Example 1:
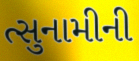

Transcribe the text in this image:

ત્સુનામીની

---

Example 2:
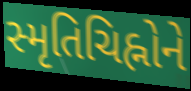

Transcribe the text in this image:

સ્મૃતિચિહ્નોને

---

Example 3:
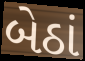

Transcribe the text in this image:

બેઠાં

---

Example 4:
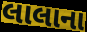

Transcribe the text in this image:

લાલાના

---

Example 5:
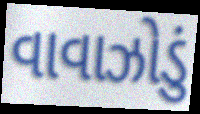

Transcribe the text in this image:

વાવાઝોડું